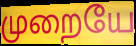
முறையே